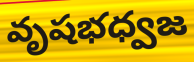
వృషభధ్వజ